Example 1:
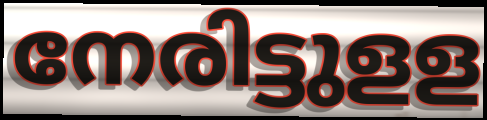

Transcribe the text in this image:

നേരിട്ടുളള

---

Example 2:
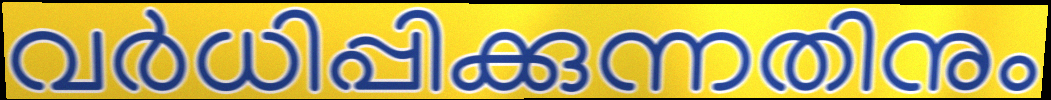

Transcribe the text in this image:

വർധിപ്പിക്കുന്നതിനും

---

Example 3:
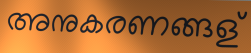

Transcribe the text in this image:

അനുകരണങ്ങള്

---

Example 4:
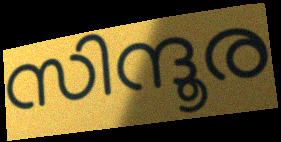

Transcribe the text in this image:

സിന്ദൂര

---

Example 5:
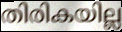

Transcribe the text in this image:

തിരികയില്ല